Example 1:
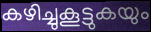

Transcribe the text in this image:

കഴിച്ചുകൂട്ടുകയും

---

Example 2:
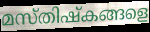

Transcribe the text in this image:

മസ്തിഷ്കങ്ങളെ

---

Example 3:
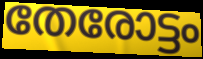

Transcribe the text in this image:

തേരോട്ടം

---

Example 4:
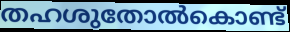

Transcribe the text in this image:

തഹശുതോൽകൊണ്ട്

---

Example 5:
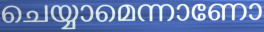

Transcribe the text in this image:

ചെയ്യാമെന്നാണോ